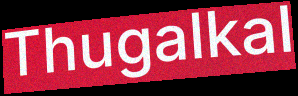
Thugalkal